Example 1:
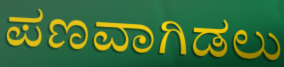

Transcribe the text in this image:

ಪಣವಾಗಿಡಲು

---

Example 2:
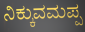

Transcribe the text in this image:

ನಿಕ್ಕುವಮಪ್ಪ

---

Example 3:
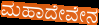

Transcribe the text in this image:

ಮಹಾದೇವೇನ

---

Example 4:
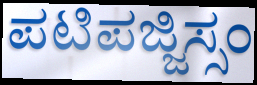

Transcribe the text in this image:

ಪಟಿಪಜ್ಜಿಸ್ಸಂ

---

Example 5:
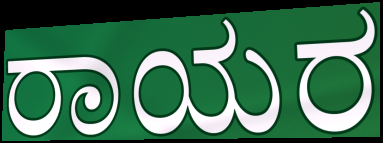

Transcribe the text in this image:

ರಾಯರ